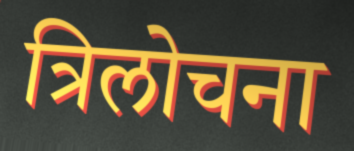
त्रिलोचना